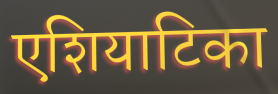
एशियाटिका